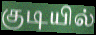
குடியில்